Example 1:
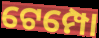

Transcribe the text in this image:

ଟେମ୍ପୋ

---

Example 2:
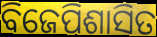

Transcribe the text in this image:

ବିଜେପିଶାସିତ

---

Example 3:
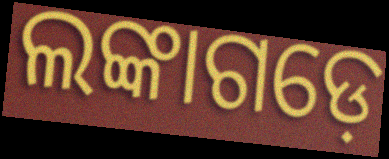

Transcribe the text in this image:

ଲଙ୍କାଗଡ଼େ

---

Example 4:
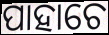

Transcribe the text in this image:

ପାହାଚେ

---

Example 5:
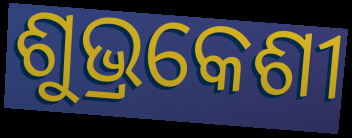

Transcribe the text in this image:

ଶୁଭ୍ରକେଶୀ